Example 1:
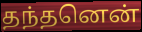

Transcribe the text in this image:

தந்தனென்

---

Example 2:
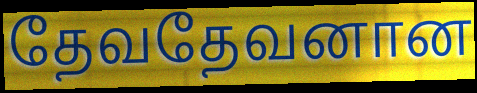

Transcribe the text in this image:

தேவதேவனான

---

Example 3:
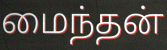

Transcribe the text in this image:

மைந்தன்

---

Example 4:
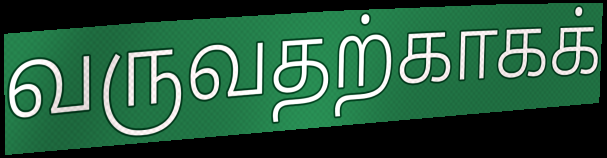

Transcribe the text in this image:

வருவதற்காகக்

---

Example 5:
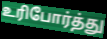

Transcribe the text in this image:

உரிபோர்த்து